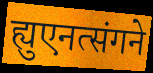
ह्युएनत्संगने